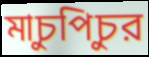
মাচুপিচুর